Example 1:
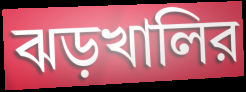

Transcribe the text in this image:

ঝড়খালির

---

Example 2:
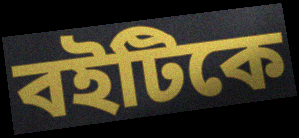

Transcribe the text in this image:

বইটিকে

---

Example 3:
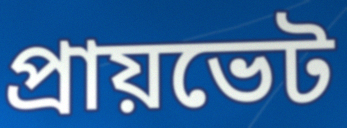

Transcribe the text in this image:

প্রায়ভেট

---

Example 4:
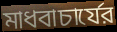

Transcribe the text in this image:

মাধবাচার্যের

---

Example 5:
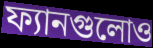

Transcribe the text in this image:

ফ্যানগুলোও